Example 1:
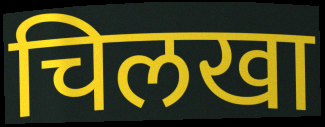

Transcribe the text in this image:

चिलखा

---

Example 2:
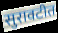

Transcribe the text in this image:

सुरावटीत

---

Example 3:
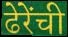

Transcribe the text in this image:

ढेरेंची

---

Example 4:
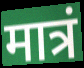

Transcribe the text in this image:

मात्रं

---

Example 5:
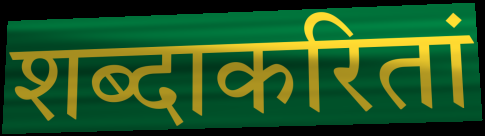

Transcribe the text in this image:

शब्दाकरितां